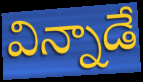
విన్నాడే